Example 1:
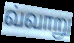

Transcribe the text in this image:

வ்வாறு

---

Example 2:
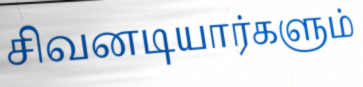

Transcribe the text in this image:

சிவனடியார்களும்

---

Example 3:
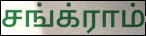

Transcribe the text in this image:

சங்க்ராம்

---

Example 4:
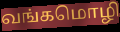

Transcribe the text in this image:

வங்கமொழி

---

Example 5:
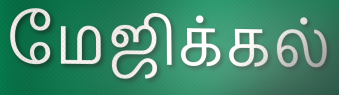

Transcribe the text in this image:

மேஜிக்கல்